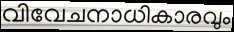
വിവേചനാധികാരവും